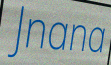
Jnana